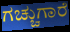
ಗಚ್ಚುಗಾರೆ